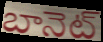
బానెట్